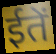
ईतें